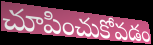
చూపించుకోవడం